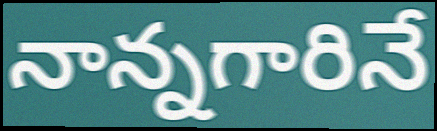
నాన్నగారినే